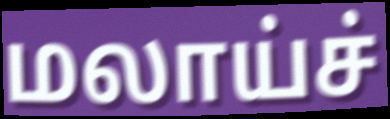
மலாய்ச்